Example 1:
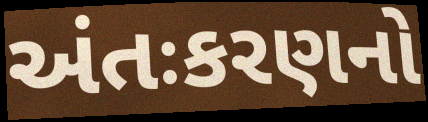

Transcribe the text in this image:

અંતઃકરણનો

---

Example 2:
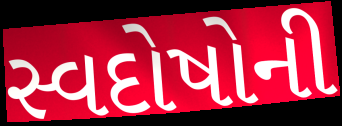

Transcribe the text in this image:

સ્વદોષોની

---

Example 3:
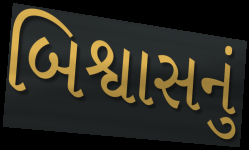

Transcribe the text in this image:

બિશ્વાસનું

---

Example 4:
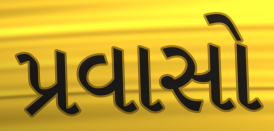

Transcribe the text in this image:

પ્રવાસો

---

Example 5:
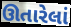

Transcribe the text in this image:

ઊતારેલાં